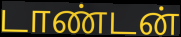
டாண்டன்